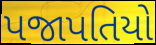
પજાપતિયો